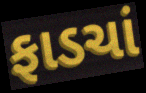
ફાડચાં